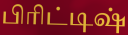
பிரிட்டிஷ்